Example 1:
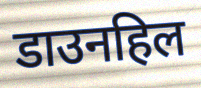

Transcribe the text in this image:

डाउनहिल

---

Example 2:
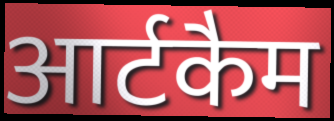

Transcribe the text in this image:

आर्टकैम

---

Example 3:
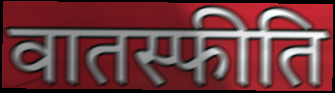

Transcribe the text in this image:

वातस्फीति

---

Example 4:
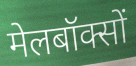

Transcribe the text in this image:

मेलबॉक्सों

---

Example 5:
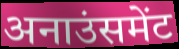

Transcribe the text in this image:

अनाउंसमेंट